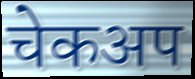
चेकअप